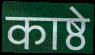
काष्ठे